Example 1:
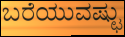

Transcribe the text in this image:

ಬರೆಯುವಷ್ಟು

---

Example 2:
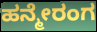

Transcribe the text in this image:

ಹನ್ಮೇರಂಗ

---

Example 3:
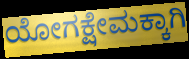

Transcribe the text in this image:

ಯೋಗಕ್ಷೇಮಕ್ಕಾಗಿ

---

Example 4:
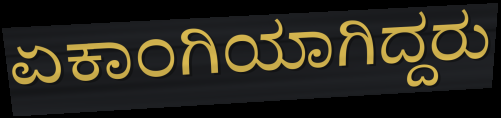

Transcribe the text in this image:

ಏಕಾಂಗಿಯಾಗಿದ್ದರು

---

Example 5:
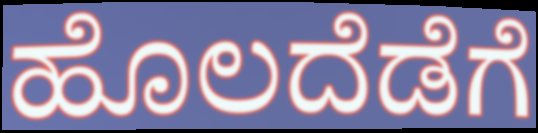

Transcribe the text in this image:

ಹೊಲದೆಡೆಗೆ